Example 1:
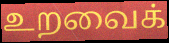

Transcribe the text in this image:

உறவைக்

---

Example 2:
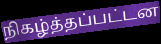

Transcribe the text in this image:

நிகழ்த்தப்பட்டன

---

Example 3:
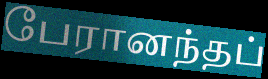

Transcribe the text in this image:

பேரானந்தப்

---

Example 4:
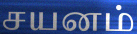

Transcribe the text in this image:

சயனம்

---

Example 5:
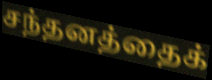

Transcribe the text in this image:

சந்தனத்தைக்